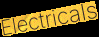
Electricals